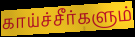
காய்ச்சீர்களும்